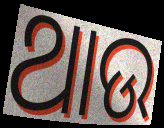
ଥାଉ